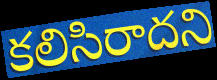
కలిసిరాదని